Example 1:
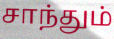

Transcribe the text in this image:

சாந்தும்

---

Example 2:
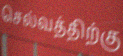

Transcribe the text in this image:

செல்வத்திற்கு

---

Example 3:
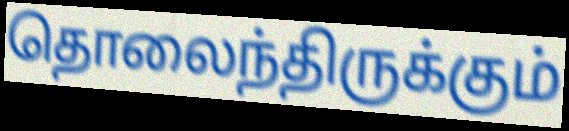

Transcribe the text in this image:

தொலைந்திருக்கும்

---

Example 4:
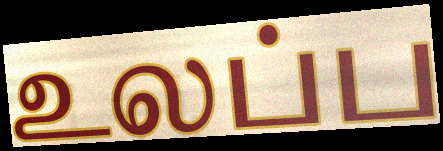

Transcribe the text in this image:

உலப்ப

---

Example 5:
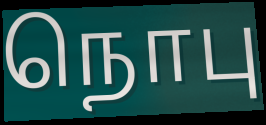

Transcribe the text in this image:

நொபு